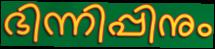
ഭിന്നിപ്പിനും